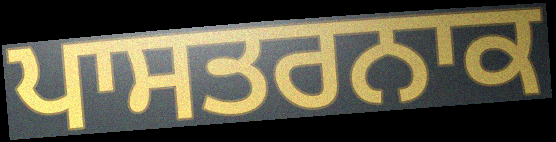
ਪਾਸਤਰਨਾਕ